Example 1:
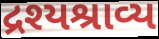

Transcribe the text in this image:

દ્રશ્યશ્રાવ્ય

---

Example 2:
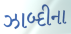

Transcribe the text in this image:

ઝાબ્દીના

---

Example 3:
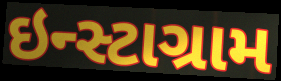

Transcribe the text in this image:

ઇન્સ્ટાગ્રામ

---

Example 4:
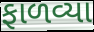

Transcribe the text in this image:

ફાળવ્યા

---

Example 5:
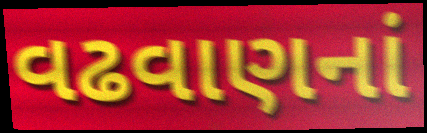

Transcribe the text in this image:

વઢવાણનાં